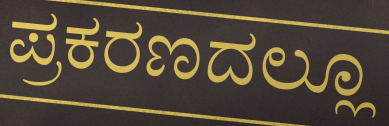
ಪ್ರಕರಣದಲ್ಲೂ